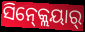
ସିନ୍କ୍ଲେୟାର୍